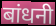
बांधनी